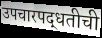
उपचारपद्धतीची